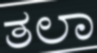
ತಲಾ